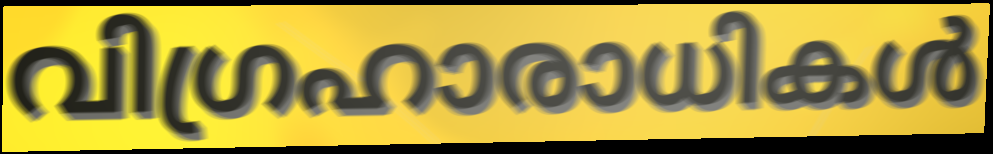
വിഗ്രഹാരാധികൾ